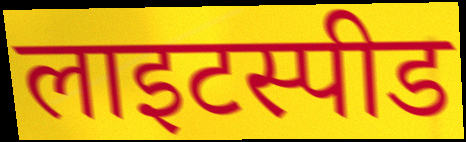
लाइटस्पीड